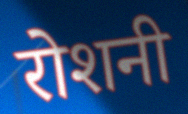
रोशनी